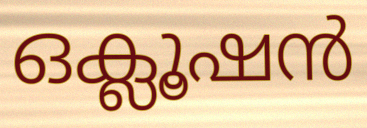
ഒക്ലൂഷൻ